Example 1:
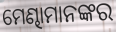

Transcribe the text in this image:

ମେଣ୍ଢାମାନଙ୍କର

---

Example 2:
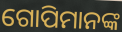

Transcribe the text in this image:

ଗୋପିମାନଙ୍କ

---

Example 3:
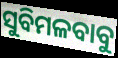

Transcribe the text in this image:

ସୁବିମଳବାବୁ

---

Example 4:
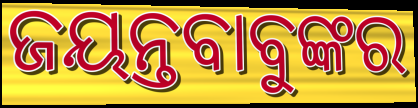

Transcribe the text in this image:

ଜୟନ୍ତବାବୁଙ୍କର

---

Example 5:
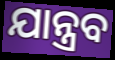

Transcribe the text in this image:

ଯାନ୍ତ୍ରବ